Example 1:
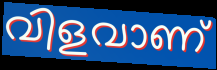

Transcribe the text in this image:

വിളവാണ്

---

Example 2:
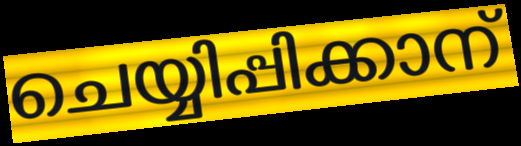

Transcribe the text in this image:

ചെയ്യിപ്പിക്കാന്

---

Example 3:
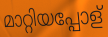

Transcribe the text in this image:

മാറ്റിയപ്പോള്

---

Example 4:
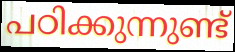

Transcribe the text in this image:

പഠിക്കുന്നുണ്ട്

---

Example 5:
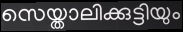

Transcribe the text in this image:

സെയ്താലിക്കുട്ടിയും